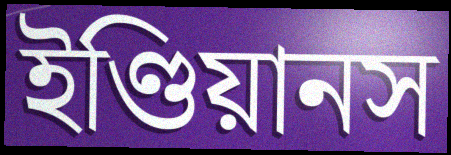
ইণ্ডিয়ানস